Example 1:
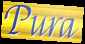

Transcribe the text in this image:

Pura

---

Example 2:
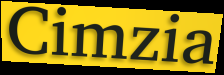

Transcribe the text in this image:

Cimzia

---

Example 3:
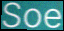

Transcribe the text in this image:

Soe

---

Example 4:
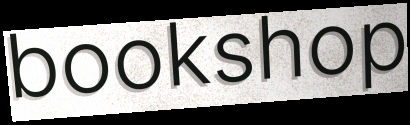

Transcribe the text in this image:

bookshop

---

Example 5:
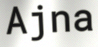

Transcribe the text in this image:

Ajna